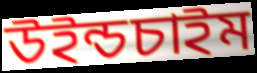
উইন্ডচাইম